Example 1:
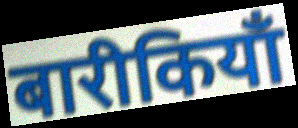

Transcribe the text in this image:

बारीकियाँ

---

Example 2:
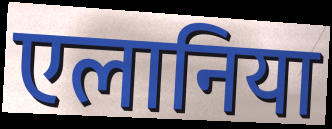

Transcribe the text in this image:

एलानिया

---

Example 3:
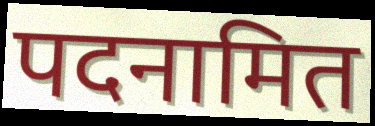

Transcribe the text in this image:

पदनामित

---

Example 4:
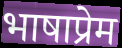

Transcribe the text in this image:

भाषाप्रेम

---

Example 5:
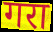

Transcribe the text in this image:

गरा